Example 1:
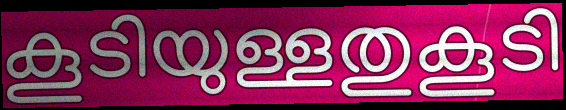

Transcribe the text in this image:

കൂടിയുള്ളതുകൂടി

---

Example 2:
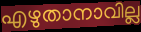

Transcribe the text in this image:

എഴുതാനാവില്ല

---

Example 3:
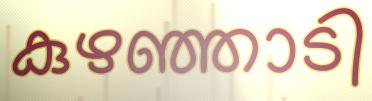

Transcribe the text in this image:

കുഴഞ്ഞാടി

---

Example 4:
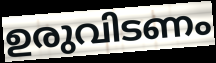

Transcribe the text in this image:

ഉരുവിടണം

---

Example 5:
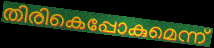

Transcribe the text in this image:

തിരികെപ്പോകുമെന്ന്